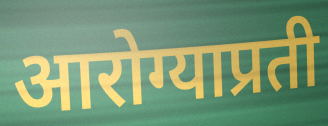
आरोग्याप्रती